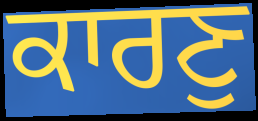
ਕਾਰਣੁ